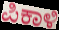
ಪಿಕಾಳಿ